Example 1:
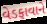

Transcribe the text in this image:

વેડફાવાને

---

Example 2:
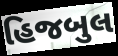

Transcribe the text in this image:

હિજબુલ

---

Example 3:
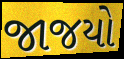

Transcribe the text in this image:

જાજયો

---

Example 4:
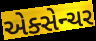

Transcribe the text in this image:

એક્સેન્ચર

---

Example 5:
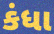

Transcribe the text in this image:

કંધા